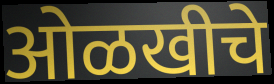
ओळखीचे